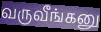
வருவீங்கனு